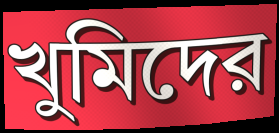
খুমিদের